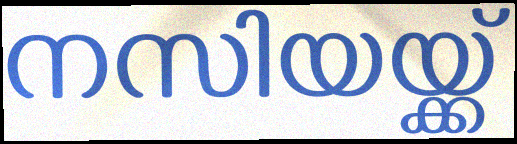
നസിയയ്ക്ക്